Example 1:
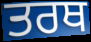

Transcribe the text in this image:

ਤਰਥ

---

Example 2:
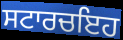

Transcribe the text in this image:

ਸਟਾਰਚਇਹ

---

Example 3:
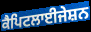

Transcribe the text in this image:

ਕੈਪਿਟਲਾਈਜੇਸ਼ਨ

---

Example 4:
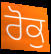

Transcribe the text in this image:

ਰੋਕੁ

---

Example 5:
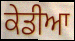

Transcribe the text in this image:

ਕੇਡੀਆ